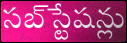
సబ్‌స్టేషన్లు